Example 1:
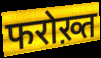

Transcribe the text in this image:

फरोख़्त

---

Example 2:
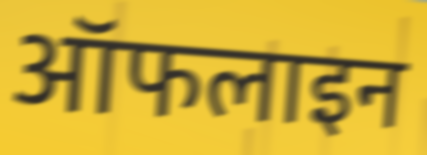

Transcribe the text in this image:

ऑफलाइन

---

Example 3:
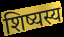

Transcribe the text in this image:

शिष्यस्य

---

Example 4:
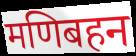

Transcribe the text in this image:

मणिबहन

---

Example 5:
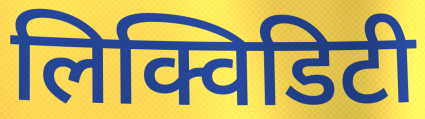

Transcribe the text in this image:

लिक्विडिटी